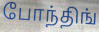
போந்திங்